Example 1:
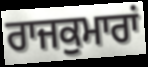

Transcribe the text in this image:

ਰਾਜਕੁਮਾਰਾਂ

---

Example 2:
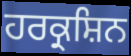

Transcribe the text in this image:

ਹਰਕ੍ਰਸ਼ਿਨ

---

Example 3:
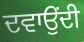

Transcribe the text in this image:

ਦਵਾਉਂਦੀ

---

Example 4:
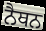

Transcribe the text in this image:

ਨੈਥਨ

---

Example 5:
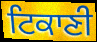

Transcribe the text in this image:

ਟਿਕਾਣੀ